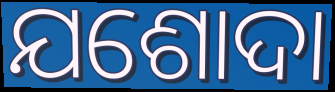
ଯଶୋଦା